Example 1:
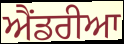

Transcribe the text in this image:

ਐਂਡਰੀਆ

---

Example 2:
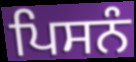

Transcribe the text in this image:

ਪਿਸਨੰ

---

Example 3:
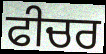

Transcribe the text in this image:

ਫੀਚਰ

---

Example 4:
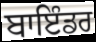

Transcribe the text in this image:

ਬਾਇੰਡਰ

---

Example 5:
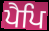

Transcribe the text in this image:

ਪੈਪਿ